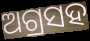
ଅଗ୍ରସହ